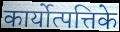
कार्योत्पत्तिके